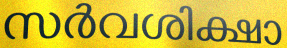
സർവശിക്ഷാ